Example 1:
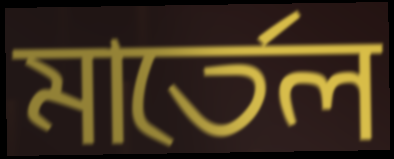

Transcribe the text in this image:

মার্তেল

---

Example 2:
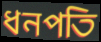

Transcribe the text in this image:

ধনপতি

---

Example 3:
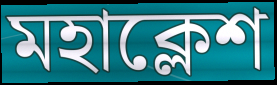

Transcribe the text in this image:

মহাক্লেশ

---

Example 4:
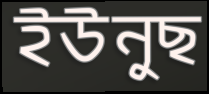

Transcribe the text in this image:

ইউনুছ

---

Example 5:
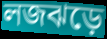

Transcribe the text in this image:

লজঝড়ে